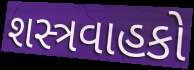
શસ્ત્રવાહકો